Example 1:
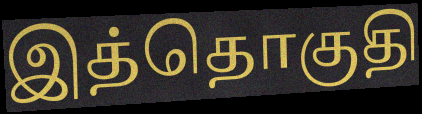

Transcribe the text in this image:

இத்தொகுதி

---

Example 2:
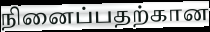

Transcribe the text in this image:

நினைப்பதற்கான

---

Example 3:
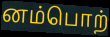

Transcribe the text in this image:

னம்பொற்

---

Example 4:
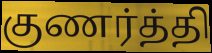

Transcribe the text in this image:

குணர்த்தி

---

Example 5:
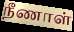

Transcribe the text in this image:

நீணாள்